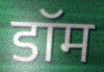
डॉम